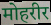
मोहरीर